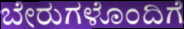
ಬೇರುಗಳೊಂದಿಗೆ